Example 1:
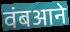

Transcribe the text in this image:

वंबआने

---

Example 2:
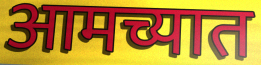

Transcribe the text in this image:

आमच्यात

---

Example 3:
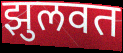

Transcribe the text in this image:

झुलवत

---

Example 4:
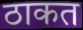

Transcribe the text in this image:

ठाकत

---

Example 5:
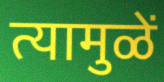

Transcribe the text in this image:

त्यामुळें